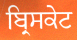
ਬ੍ਰਿਸਕੇਟ